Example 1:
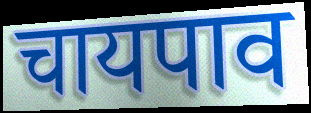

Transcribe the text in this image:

चायपाव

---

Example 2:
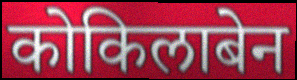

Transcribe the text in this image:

कोकिलाबेन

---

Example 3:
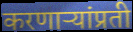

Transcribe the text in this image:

करणाऱ्यांप्रती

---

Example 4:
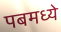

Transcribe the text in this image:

पबमध्ये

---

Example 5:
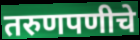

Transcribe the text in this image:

तरुणपणीचे